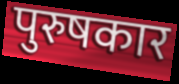
पुरुषकार